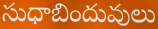
సుధాబిందువులు